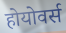
होयोवर्स